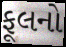
ફૂલનો